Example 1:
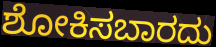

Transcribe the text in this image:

ಶೋಕಿಸಬಾರದು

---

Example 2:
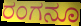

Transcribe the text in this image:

ರಂಗನೂ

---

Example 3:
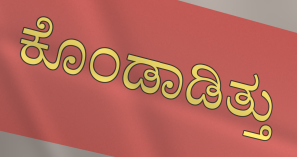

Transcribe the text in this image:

ಕೊಂಡಾಡಿತ್ತು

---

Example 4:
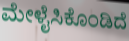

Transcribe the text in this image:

ಮೇಳೈಸಿಕೊಂಡಿದೆ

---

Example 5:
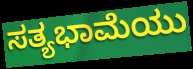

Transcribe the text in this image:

ಸತ್ಯಭಾಮೆಯು